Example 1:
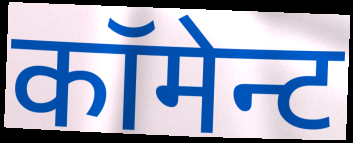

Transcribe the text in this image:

कॉमेन्ट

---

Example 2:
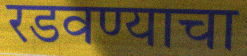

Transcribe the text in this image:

रडवण्याचा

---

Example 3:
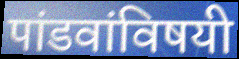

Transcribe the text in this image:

पांडवांविषयी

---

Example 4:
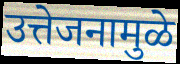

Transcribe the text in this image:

उत्तेजनामुळे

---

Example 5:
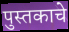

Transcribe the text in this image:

पुस्तकाचे